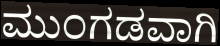
ಮುಂಗಡವಾಗಿ